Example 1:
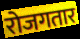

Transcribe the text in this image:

रोजगतार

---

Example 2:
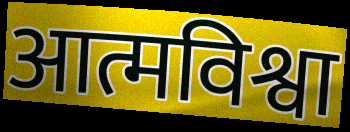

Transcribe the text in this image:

आत्मविश्वा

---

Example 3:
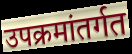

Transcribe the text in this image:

उपक्रमांतर्गत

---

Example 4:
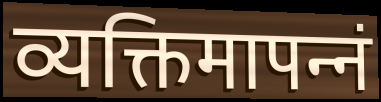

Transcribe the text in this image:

व्यक्तिमापन्नं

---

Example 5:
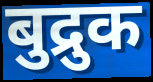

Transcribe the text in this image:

बुद्रुक